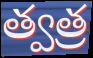
త్వత్ర